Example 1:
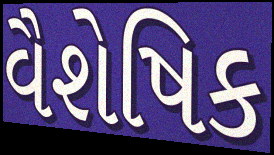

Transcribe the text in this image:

વૈશેષિક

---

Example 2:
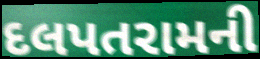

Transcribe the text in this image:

દલપતરામની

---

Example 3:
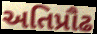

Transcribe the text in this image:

અતિપ્રૌઢ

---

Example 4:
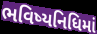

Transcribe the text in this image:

ભવિષ્યનિધિમાં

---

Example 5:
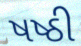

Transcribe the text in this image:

ષષ્ઠી